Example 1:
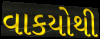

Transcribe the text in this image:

વાકયોથી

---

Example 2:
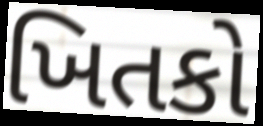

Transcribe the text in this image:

ખિતકો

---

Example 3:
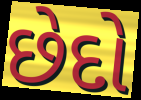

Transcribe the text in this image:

છેદો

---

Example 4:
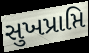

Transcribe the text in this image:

સુખપ્રાપ્તિ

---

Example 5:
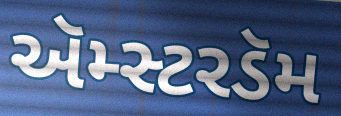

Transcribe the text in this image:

ઍમ્સ્ટરડૅમ